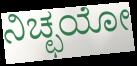
ನಿಚ್ಛಯೋ